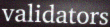
validators